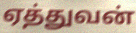
ஏத்துவன்